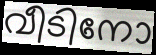
വീടിനോ